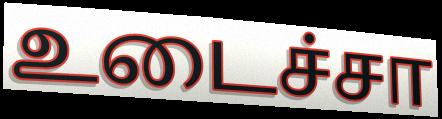
உடைச்சா